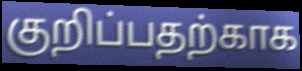
குறிப்பதற்காக